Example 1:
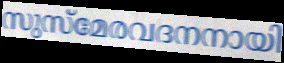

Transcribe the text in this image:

സുസ്മേരവദനനായി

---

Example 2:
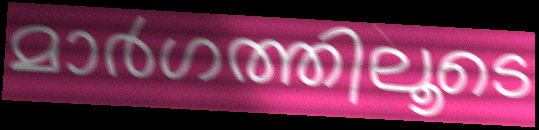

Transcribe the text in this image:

മാർഗത്തിലൂടെ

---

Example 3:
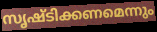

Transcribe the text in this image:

സൃഷ്ടിക്കണമെന്നും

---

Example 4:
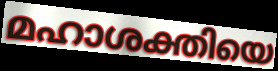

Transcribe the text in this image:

മഹാശക്തിയെ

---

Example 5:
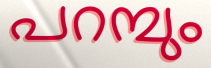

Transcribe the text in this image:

പറമ്പും